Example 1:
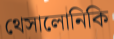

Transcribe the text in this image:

থেসালোনিকি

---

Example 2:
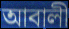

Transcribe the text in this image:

আবালী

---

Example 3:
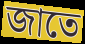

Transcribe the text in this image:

জাতে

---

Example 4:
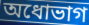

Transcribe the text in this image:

অধোভাগ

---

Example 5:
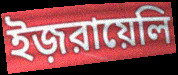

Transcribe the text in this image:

ইজ়রায়েলি